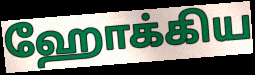
ஹோக்கிய